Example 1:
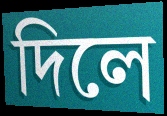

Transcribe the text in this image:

দিলে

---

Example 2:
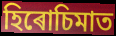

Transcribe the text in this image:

হিৰোচিমাত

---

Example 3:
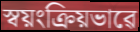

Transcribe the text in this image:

স্বয়ংক্ৰিয়ভাৱে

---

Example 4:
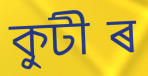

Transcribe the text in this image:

কুটীৰ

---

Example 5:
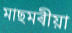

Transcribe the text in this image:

মাছমৰীয়া